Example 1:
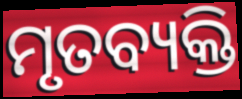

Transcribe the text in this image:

ମୃତବ୍ୟକ୍ତି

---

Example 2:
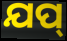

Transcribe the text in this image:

ଯପ୍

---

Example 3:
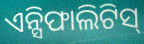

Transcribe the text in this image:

ଏନ୍ସିଫାଲିଟିସ୍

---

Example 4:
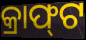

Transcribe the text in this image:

କ୍ରାଫ୍‌ଟ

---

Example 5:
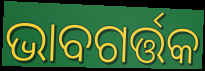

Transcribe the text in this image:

ଭାବଗର୍ତ୍ତକ